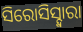
ସିରୋସିସ୍ଦ୍ୱାରା